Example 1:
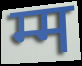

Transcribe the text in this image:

म्म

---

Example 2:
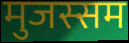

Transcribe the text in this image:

मुजस्सम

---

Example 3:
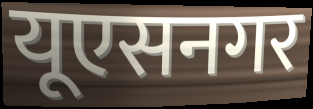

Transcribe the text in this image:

यूएसनगर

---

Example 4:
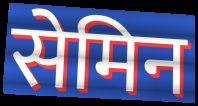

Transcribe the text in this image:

सेमिन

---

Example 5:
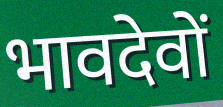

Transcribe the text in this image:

भावदेवों